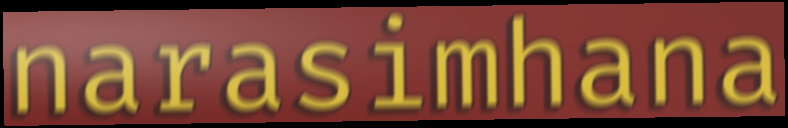
narasimhana